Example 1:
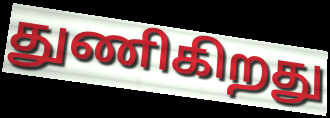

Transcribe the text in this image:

துணிகிறது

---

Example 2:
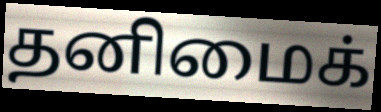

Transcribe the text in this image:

தனிமைக்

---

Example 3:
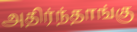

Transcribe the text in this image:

அதிர்ந்தாங்கு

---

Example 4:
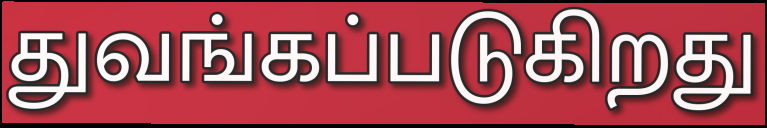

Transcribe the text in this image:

துவங்கப்படுகிறது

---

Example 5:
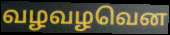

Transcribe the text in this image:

வழவழவென